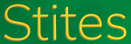
Stites